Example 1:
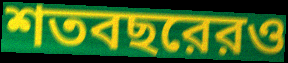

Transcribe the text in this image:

শতবছরেরও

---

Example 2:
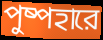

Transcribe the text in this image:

পুষ্পহারে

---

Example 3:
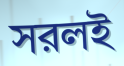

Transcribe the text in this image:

সরলই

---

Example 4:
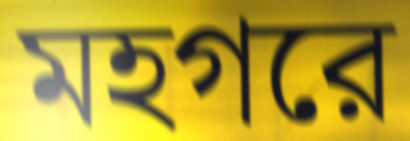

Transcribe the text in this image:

মহগরে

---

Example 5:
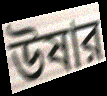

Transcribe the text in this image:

উষার